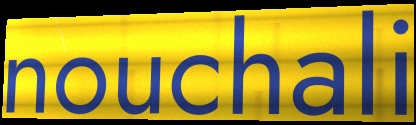
nouchali